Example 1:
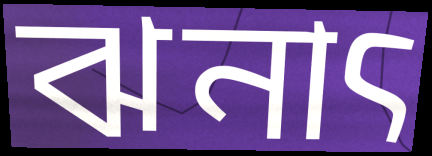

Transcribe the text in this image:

ঝনাৎ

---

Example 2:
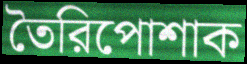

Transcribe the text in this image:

তৈরিপোশাক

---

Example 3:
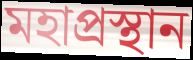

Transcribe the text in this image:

মহাপ্রস্থান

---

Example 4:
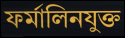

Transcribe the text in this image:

ফর্মালিনযুক্ত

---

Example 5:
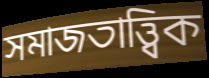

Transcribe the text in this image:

সমাজতাত্ত্বিক